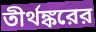
তীর্থঙ্করের